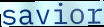
savior